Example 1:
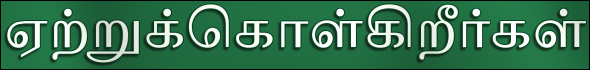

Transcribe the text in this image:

ஏற்றுக்கொள்கிறீர்கள்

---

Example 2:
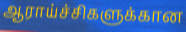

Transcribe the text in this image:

ஆராய்ச்சிகளுக்கான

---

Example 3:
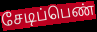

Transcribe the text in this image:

சேடிப்பெண்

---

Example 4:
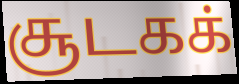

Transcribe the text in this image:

சூடகக்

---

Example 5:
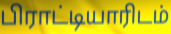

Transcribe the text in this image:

பிராட்டியாரிடம்